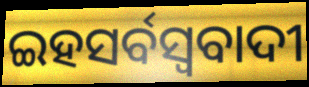
ଇହସର୍ବସ୍ୱବାଦୀ